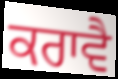
ਕਰਾਵੈ